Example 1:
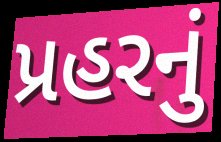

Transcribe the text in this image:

પ્રહરનું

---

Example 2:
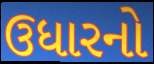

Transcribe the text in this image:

ઉધારનો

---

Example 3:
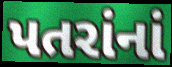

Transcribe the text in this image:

પતરાંનાં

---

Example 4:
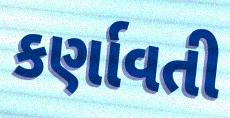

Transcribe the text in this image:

કર્ણાવતી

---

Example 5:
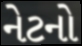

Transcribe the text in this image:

નેટનો